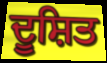
ਦੂਸ਼ਿਤ